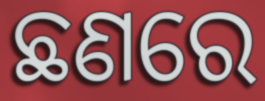
ଛଣରେ